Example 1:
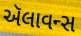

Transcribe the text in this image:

ઍલાવન્સ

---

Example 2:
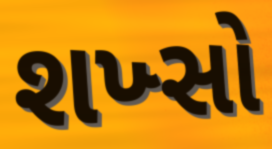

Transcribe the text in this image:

શખ્સો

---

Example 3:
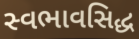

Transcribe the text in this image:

સ્વભાવસિદ્ધ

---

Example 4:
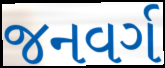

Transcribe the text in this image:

જનવર્ગ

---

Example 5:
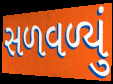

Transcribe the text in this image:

સળવળ્યું